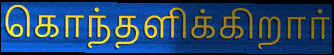
கொந்தளிக்கிறார்